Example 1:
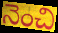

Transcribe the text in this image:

నెంచి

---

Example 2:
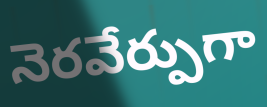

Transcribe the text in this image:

నెరవేర్పుగా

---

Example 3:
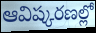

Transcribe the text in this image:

ఆవిష్కరణల్లో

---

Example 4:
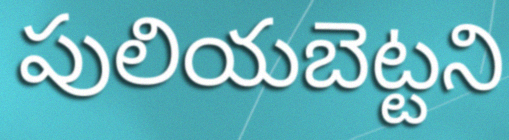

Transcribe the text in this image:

పులియబెట్టని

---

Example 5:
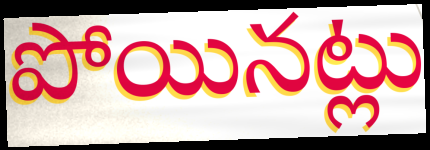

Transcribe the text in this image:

పోయినట్లు